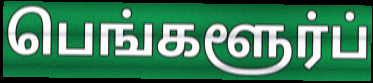
பெங்களூர்ப்